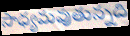
సాధ్యమవుతున్నది